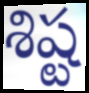
శిష్ట